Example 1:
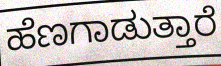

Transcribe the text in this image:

ಹೆಣಗಾಡುತ್ತಾರೆ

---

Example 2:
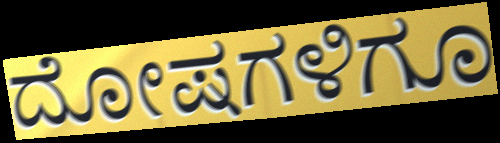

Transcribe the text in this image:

ದೋಷಗಳಿಗೂ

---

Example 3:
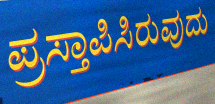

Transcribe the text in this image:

ಪ್ರಸ್ತಾಪಿಸಿರುವುದು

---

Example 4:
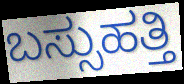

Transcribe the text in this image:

ಬಸ್ಸುಹತ್ತಿ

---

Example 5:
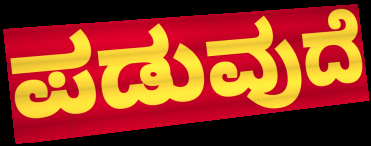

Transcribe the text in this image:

ಪಡುವುದೆ